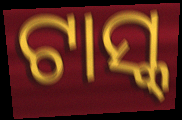
ଟାସ୍କ୍